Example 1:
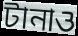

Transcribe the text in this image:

টানাও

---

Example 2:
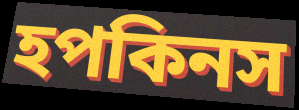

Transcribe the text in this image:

হপকিনস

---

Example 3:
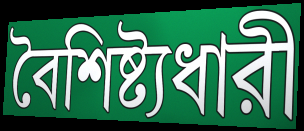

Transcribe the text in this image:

বৈশিষ্ট্যধারী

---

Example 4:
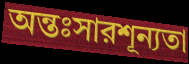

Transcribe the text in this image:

অন্তঃসারশূন্যতা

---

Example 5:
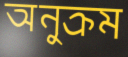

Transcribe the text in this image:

অনুক্রম